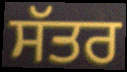
ਸੱਤਰ